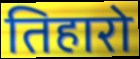
तिहारो